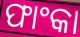
ଫାଂକା